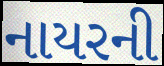
નાયરની